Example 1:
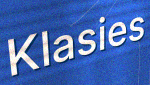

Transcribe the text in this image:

Klasies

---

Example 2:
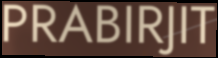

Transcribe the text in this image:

PRABIRJIT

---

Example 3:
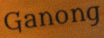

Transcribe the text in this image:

Ganong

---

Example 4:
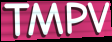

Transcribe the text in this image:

TMPV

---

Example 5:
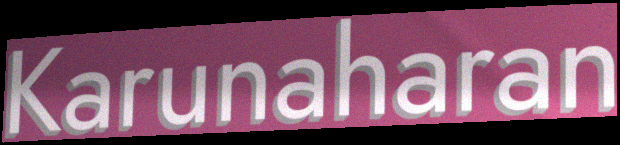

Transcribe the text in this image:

Karunaharan